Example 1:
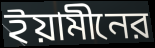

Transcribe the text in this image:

ইয়ামীনের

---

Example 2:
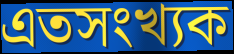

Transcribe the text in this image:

এতসংখ্যক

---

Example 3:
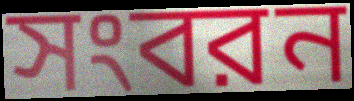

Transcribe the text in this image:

সংবরন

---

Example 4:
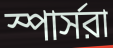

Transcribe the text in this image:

স্পার্সরা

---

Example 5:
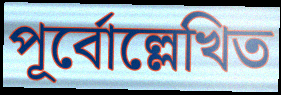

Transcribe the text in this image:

পূর্বোল্লেখিত